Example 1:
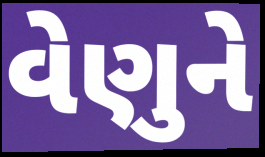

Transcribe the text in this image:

વેણુને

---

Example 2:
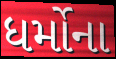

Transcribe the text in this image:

ધર્મોના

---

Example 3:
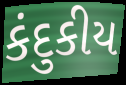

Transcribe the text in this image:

કંદુકીય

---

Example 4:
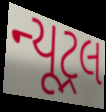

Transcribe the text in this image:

ન્યૂટ્રલ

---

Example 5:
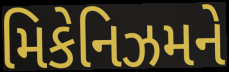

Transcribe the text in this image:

મિકેનિઝમને